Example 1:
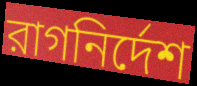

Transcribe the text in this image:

রাগনির্দেশ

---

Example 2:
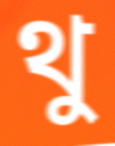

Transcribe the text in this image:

থু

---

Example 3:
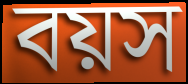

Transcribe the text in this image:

বয়স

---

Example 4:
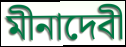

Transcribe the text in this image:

মীনাদেবী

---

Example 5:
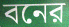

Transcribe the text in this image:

বনের